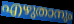
എഴുതാനും